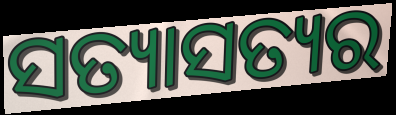
ସତ୍ୟାସତ୍ୟର